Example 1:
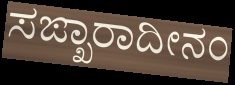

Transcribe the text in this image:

ಸಙ್ಖಾರಾದೀನಂ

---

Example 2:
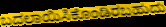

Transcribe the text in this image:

ಬದಲಾಯಿಸಿಕೊಂಡಿರಬಹುದು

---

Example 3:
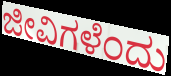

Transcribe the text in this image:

ಜೀವಿಗಳೆಂದು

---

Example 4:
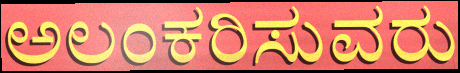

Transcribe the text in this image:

ಅಲಂಕರಿಸುವರು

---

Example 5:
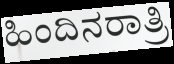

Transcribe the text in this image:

ಹಿಂದಿನರಾತ್ರಿ